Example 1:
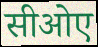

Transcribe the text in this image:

सीओए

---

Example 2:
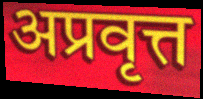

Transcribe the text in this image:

अप्रवृत्त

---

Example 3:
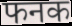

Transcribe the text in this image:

फनक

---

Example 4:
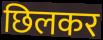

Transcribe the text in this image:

छिलकर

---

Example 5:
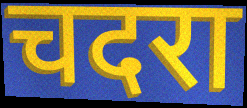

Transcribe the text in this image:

चदरा